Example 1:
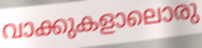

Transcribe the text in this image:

വാക്കുകളാലൊരു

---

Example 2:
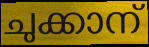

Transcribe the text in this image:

ചുക്കാന്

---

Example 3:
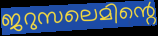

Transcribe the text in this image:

ജറുസലെമിന്റെ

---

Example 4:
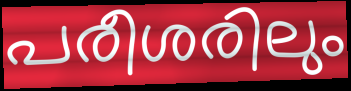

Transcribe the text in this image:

പരീശരിലും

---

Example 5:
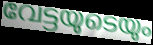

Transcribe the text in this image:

വേട്ടയുടെയും